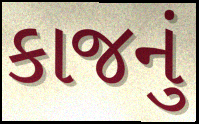
કાજનું